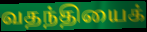
வதந்தியைக்